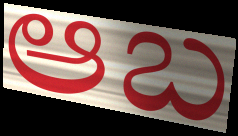
ఆబ